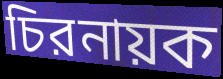
চিরনায়ক